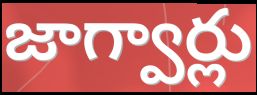
జాగ్వార్లు